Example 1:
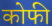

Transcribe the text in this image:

कोफी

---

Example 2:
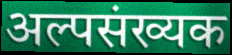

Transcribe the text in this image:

अल्‍पसंख्‍यक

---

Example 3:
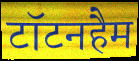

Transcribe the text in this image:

टॉटनहैम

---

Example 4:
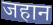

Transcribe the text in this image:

जहान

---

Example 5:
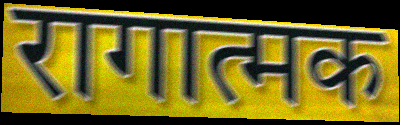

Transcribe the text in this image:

रागात्मक